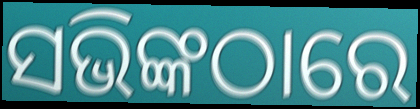
ସଭିଙ୍କଠାରେ